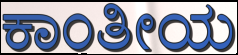
ಕಾಂತೀಯ